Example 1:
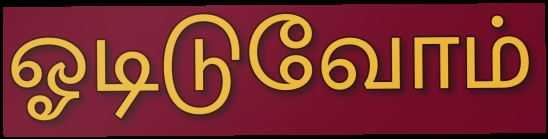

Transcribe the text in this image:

ஓடிடுவோம்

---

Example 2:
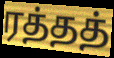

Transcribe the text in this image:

ரத்தத்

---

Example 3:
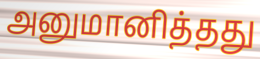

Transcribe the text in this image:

அனுமானித்தது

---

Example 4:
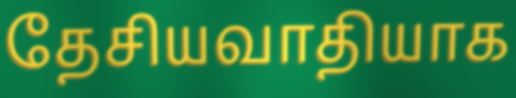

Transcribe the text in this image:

தேசியவாதியாக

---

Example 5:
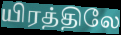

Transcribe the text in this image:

யிரத்திலே